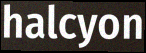
halcyon